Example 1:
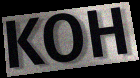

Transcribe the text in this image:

KOH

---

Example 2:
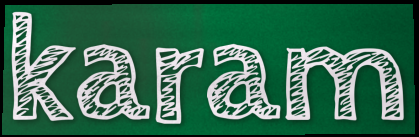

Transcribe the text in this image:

karam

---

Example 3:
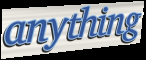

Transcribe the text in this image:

anything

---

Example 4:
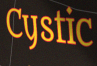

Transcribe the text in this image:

Cystic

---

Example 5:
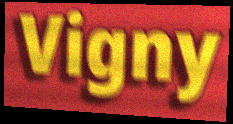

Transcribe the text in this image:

Vigny